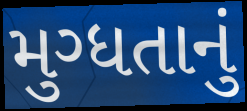
મુગ્ધતાનું